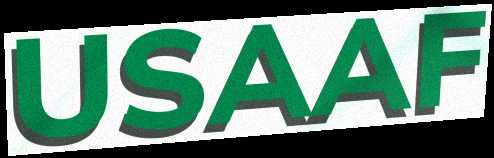
USAAF